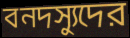
বনদস্যুদের